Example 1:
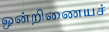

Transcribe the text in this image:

ஒன்றிணையச்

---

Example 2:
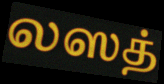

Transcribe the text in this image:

லஸத்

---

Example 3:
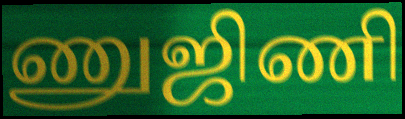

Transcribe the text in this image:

ணுஜிணி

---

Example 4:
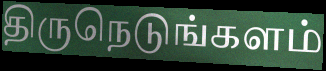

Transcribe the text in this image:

திருநெடுங்களம்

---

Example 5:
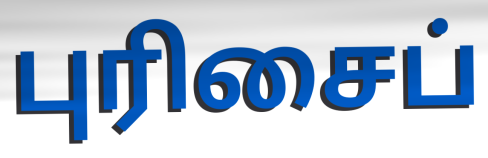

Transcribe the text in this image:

புரிசைப்